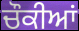
ਚੌਕੀਆਂ